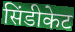
सिंडीकेट